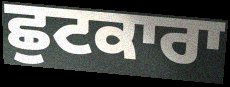
ਛੁਟਕਾਰਾ